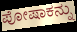
ಪೋಷಾಕನ್ನು